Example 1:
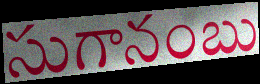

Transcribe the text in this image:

సుగానంబు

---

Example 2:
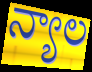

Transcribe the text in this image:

న్యాల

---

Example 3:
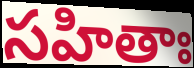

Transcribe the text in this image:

సహితాః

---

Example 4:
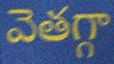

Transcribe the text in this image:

వెతగ్గా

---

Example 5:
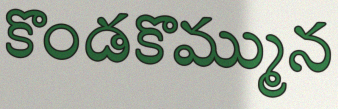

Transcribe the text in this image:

కొండకొమ్మున